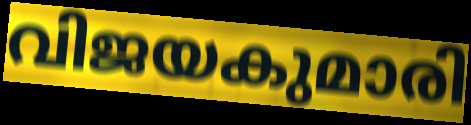
വിജയകുമാരി